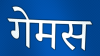
गेमस